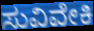
ಸುವಿವೇಕಿ